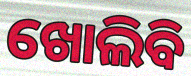
ଖୋଲିବି